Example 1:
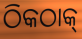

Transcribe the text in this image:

ଠିକଠାକ୍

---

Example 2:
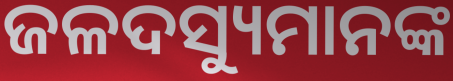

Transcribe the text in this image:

ଜଳଦସ୍ୟୁମାନଙ୍କ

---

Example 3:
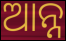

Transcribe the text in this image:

ଆନ୍ନ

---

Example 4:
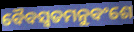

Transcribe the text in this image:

ବୈବସ୍ଵତମନୁବଂଶେ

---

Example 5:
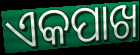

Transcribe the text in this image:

ଏକପାଖ